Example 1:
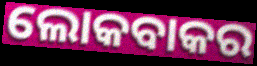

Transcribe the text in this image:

ଲୋକବାକର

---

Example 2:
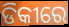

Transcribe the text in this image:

ଡିକୀରେ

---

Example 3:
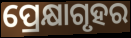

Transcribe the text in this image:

ପ୍ରେକ୍ଷାଗୃହର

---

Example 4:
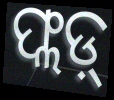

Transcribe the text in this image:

ଫ୍ଲଡ଼୍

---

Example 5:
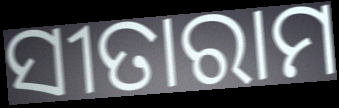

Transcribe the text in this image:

ସୀତାରାମ